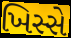
ખિસ્સે